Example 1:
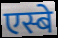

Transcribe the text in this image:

एस्बे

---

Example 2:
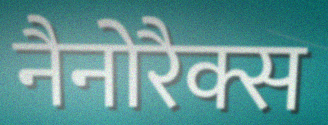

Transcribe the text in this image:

नैनोरैक्स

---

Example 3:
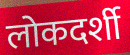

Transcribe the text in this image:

लोकदर्शी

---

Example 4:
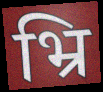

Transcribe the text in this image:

भ्रि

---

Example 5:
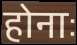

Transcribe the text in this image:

होनाः